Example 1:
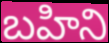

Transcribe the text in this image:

బహిని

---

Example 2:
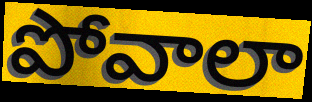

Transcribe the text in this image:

పోవాలా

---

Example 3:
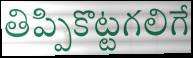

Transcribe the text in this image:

తిప్పికొట్టగలిగే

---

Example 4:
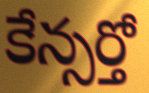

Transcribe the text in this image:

కేన్సర్తో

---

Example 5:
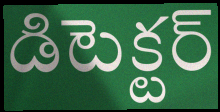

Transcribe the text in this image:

డిటెక్టర్